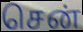
சென்